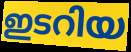
ഇടറിയ